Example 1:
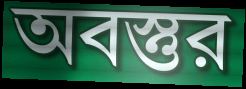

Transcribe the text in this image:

অবস্তুর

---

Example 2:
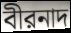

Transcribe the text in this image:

বীরনাদ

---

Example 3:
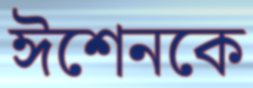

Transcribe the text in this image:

ঈশেনকে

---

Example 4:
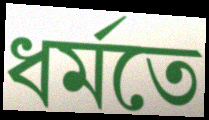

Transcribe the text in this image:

ধর্মতে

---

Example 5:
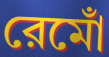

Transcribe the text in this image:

রেমোঁ